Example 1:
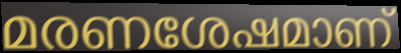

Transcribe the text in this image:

മരണശേഷമാണ്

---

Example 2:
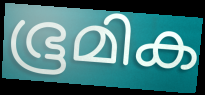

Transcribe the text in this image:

ഭൂമിക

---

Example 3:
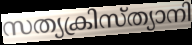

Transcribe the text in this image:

സത്യക്രിസ്ത്യാനി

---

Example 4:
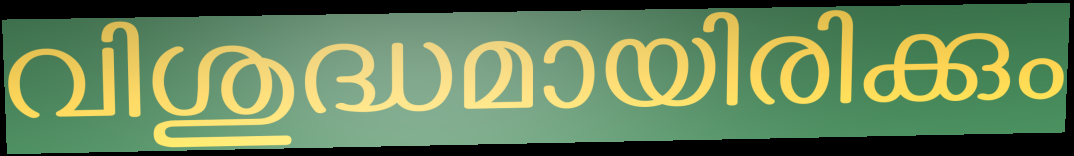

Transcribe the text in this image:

വിശുദ്ധമായിരിക്കും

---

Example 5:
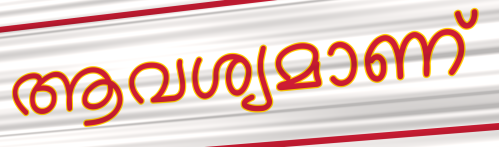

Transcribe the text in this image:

ആവശ്യമാണ്